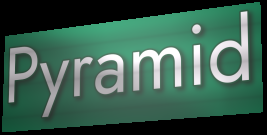
Pyramid